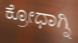
ಕ್ರೋಧಾಗ್ನಿ